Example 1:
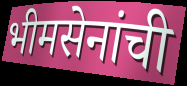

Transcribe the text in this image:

भीमसेनांची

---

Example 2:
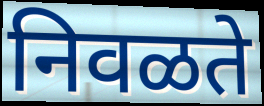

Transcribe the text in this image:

निवळते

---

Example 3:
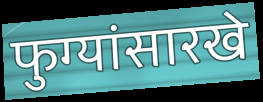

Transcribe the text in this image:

फुग्यांसारखे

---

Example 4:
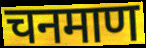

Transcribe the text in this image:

चनमाण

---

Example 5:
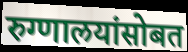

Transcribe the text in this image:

रुग्णालयांसोबत